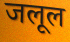
जलूल